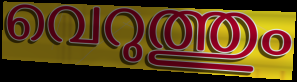
വെറുത്തും